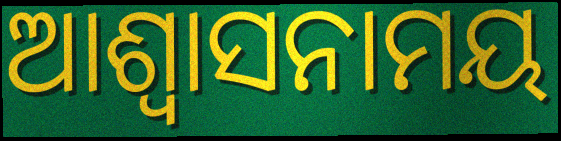
ଆଶ୍ୱାସନାମୟ